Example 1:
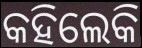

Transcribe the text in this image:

କହିଲେକି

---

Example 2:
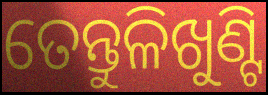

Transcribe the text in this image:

ତେନ୍ତୁଳିଖୁଣ୍ଟି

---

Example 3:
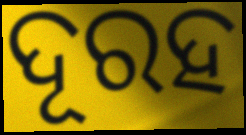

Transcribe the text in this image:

ଦୂରହ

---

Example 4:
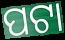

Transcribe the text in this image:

ପଟା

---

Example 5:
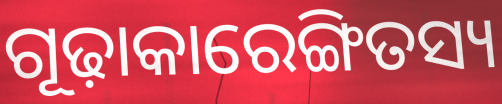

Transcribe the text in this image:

ଗୂଢ଼ାକାରେଙ୍ଗିତସ୍ୟ